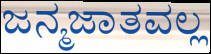
ಜನ್ಮಜಾತವಲ್ಲ